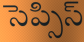
సెప్సిస్